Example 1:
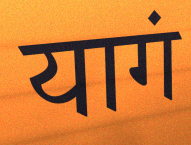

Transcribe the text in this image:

यागं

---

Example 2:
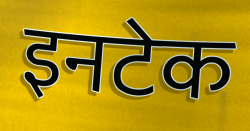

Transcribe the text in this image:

इनटेक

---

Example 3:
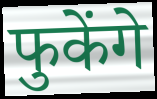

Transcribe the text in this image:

फुकेंगे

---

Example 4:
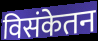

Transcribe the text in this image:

विसंकेतन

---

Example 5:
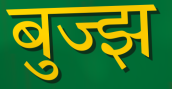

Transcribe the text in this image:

बुज्झ